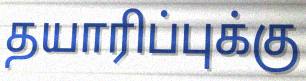
தயாரிப்புக்கு